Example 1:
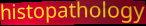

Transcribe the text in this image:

histopathology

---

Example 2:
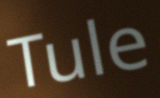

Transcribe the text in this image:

Tule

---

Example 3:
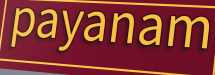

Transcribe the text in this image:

payanam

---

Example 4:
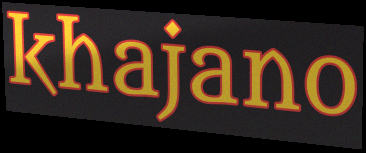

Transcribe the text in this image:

khajano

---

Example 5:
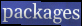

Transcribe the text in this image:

packages